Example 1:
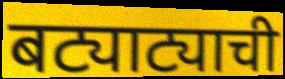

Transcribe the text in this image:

बट्याट्याची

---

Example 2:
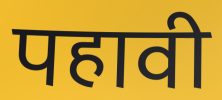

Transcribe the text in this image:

पहावी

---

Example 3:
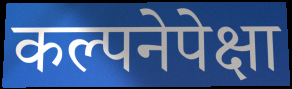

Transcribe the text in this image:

कल्पनेपेक्षा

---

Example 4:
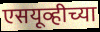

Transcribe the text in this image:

एसयूव्हीच्या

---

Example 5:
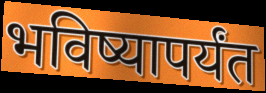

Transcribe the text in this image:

भविष्यापर्यंत